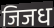
जिजध